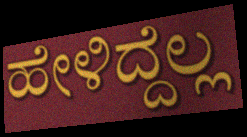
ಹೇಳಿದ್ದೆಲ್ಲ